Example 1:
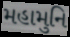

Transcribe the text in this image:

મહામુનિ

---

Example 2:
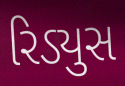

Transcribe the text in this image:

રિડ્યુસ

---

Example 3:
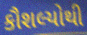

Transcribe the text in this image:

કૌશલ્યોથી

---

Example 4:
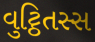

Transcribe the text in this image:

વુટ્ઠિતસ્સ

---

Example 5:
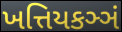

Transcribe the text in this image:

ખત્તિયકઞ્ઞં